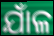
ଯାଁଳ